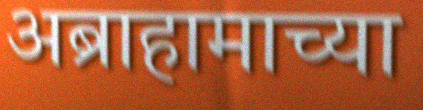
अब्राहामाच्या